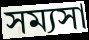
সম্যসা